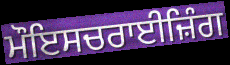
ਮੌਇਸਚਰਾਈਜ਼ਿੰਗ